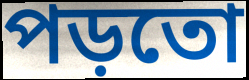
পড়তো